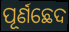
ପୂର୍ଣଛେଦ